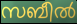
സബീൽ